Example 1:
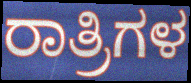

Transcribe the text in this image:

ರಾತ್ರಿಗಳ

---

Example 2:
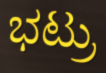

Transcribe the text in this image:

ಭಟ್ರು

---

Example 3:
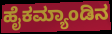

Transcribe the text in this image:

ಹೈಕಮ್ಯಾಂಡಿನ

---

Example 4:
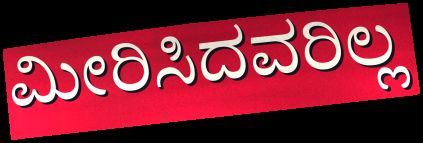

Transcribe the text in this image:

ಮೀರಿಸಿದವರಿಲ್ಲ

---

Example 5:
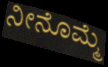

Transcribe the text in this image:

ನೀನೊಮ್ಮೆ